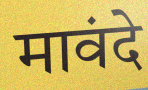
मावंदे